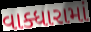
વાક્ધારામાં